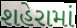
શહેરામાં